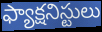
ఫ్యాక్షనిస్టులు